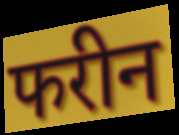
फरीन